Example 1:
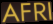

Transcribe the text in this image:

AFRI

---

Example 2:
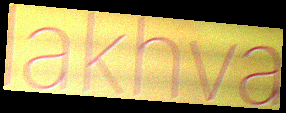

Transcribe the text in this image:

lakhva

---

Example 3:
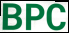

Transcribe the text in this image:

BPC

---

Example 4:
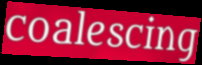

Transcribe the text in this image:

coalescing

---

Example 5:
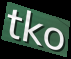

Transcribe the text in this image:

tko